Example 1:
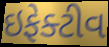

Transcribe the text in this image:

ઇફેક્ટીવ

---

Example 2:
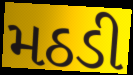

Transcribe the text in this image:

મઠડી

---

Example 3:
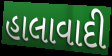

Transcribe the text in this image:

હાલાવાદી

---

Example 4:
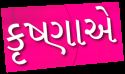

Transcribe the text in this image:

કૃષ્ણાએ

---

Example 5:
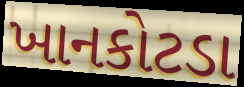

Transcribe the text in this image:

ખાનકોટડા